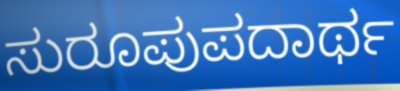
ಸುರೂಪುಪದಾರ್ಥ